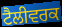
ਟੈਲੀਵਰਕ